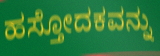
ಹಸ್ತೋದಕವನ್ನು